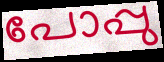
പോപ്പു